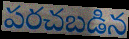
పరచబడిన